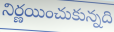
నిర్ణయించుకున్నది